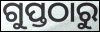
ଗୁପ୍ତଠାରୁ